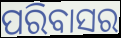
ପରିବାସର